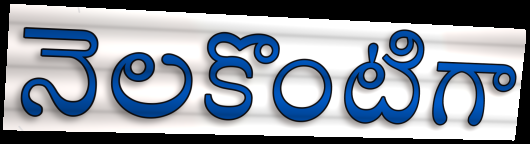
నెలకొంటిగా